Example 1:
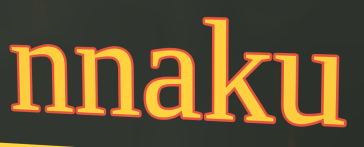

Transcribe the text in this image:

nnaku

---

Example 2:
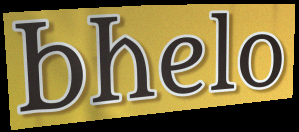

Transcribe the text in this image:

bhelo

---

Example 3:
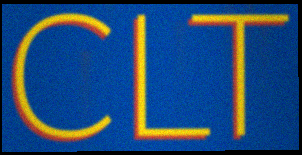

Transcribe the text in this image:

CLT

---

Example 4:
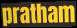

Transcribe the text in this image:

pratham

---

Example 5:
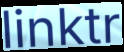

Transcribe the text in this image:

linktr